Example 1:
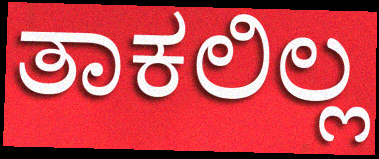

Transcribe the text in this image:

ತಾಕಲಿಲ್ಲ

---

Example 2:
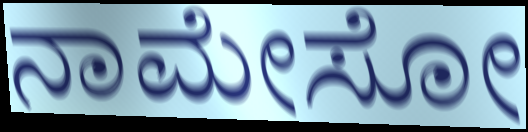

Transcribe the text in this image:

ನಾಮೇಸೋ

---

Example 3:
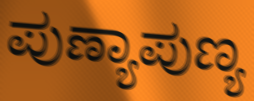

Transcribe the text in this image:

ಪುಣ್ಯಾಪುಣ್ಯ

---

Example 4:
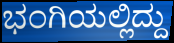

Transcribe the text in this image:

ಭಂಗಿಯಲ್ಲಿದ್ದು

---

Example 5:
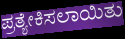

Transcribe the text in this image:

ಪ್ರತ್ಯೇಕಿಸಲಾಯಿತು